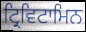
ਟ੍ਰਿਵਿਟਾਮਿਨ